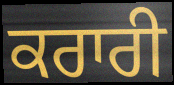
ਕਰਾਰੀ